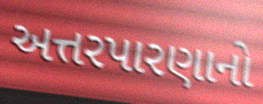
અત્તરપારણાનો